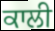
ਕਾਲੀ